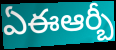
ఏఈఆర్బీ